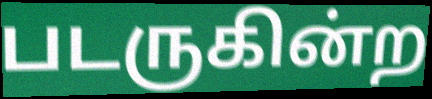
படருகின்ற